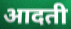
आदती